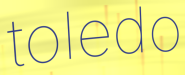
toledo